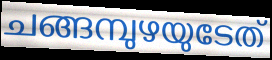
ചങ്ങമ്പുഴയുടേത്